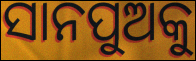
ସାନପୁଅକୁ